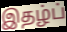
இதழ்ப்